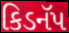
કિડનૅપ